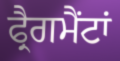
ਫ੍ਰੈਗਮੈਂਟਾਂ